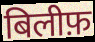
बिलीफ़